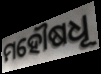
ମହୌଷଧୂ